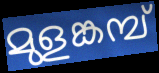
മുളങ്കമ്പ്